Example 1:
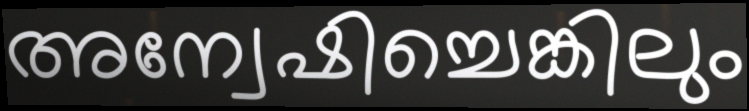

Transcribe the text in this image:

അന്വേഷിച്ചെങ്കിലും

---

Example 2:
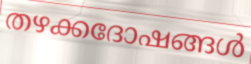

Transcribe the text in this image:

തഴക്കദോഷങ്ങൾ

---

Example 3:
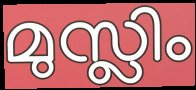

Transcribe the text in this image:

മുസ്ലിം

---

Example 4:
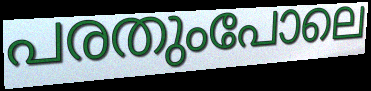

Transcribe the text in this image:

പരതുംപോലെ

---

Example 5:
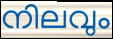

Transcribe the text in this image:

നിലവും